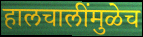
हालचालींमुळेच